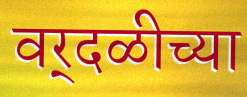
वर्दळीच्या